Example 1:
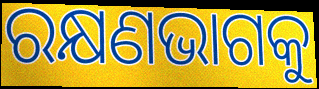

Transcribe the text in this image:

ରକ୍ଷଣଭାଗକୁ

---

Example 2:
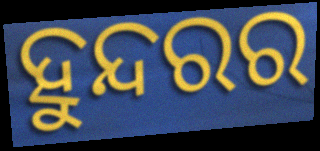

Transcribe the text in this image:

ହୁନ୍ଦରର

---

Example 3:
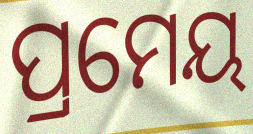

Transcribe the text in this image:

ପ୍ରମେୟ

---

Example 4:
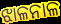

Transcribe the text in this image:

ଝାଳନାଳ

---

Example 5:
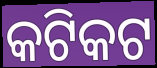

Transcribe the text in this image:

କଟିକଟ